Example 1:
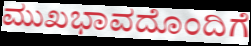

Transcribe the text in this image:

ಮುಖಭಾವದೊಂದಿಗೆ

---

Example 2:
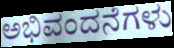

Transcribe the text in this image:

ಅಭಿವಂದನೆಗಳು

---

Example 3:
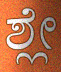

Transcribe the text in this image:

ಶ್ಲೇ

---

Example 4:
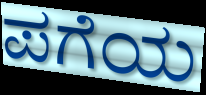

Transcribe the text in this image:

ಪಗೆಯ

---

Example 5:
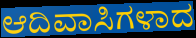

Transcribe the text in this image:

ಆದಿವಾಸಿಗಳಾದ